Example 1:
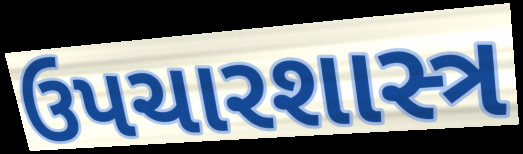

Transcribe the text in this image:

ઉપચારશાસ્ત્ર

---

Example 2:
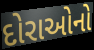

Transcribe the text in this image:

દોરાઓનો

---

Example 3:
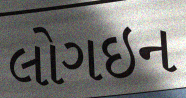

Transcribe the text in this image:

લોગઇન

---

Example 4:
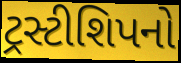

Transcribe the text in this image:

ટ્રસ્ટીશિપનો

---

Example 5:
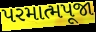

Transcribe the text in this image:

પરમાત્મપૂજા